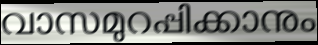
വാസമുറപ്പിക്കാനും